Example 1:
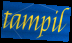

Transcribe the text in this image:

tampil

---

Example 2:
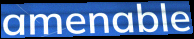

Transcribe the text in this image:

amenable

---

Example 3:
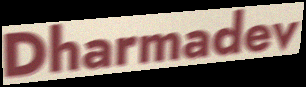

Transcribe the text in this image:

Dharmadev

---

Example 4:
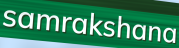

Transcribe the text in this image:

samrakshana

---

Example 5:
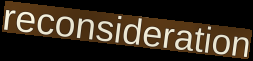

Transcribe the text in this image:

reconsideration